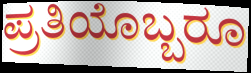
ಪ್ರತಿಯೊಬ್ಬರೂ